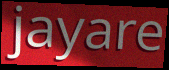
jayare